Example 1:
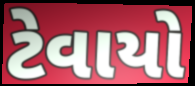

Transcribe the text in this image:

ટેવાયો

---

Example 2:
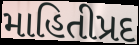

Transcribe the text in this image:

માહિતીપ્રદ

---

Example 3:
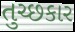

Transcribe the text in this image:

તુચ્છકાર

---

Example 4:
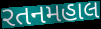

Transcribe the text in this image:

રતનમહાલ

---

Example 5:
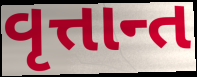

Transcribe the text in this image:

વૃત્તાન્ત